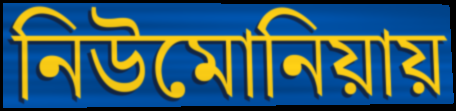
নিউমোনিয়ায়